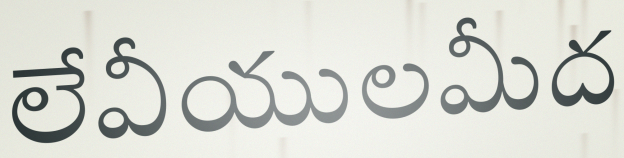
లేవీయులమీద